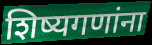
शिष्यगणांना